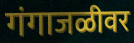
गंगाजळीवर